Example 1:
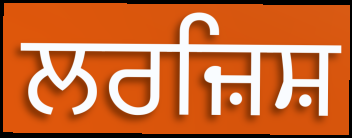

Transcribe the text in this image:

ਲਰਜ਼ਿਸ਼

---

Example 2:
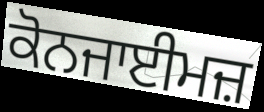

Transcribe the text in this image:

ਕੋਨਜਾਈਮਜ਼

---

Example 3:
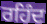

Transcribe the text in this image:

ਰਹਿੰਦ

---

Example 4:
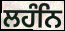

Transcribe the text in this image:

ਲਹੰਨਿ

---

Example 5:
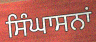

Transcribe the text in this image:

ਸਿੰਘਾਸਨਾਂ